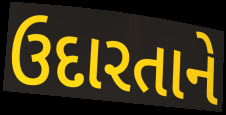
ઉદારતાને